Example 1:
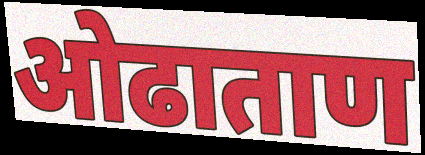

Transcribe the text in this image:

ओढाताण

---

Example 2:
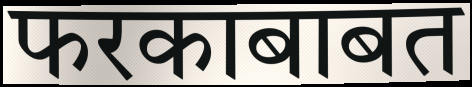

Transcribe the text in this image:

फरकाबाबत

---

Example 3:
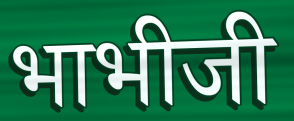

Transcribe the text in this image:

भाभीजी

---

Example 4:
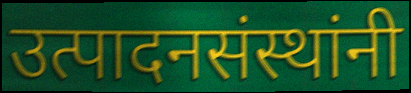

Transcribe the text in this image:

उत्पादनसंस्थांनी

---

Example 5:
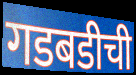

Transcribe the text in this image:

गडबडीची